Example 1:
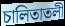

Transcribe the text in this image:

চালিতাতলী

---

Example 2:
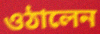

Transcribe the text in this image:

ওঠালেন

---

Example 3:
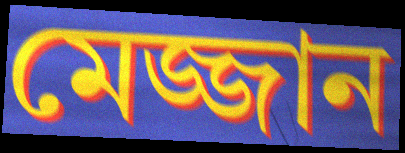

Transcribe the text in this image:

মেজ্জান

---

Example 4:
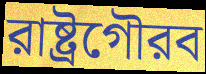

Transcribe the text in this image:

রাষ্ট্রগৌরব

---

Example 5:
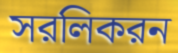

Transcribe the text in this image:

সরলিকরন